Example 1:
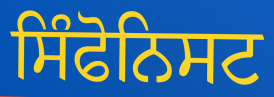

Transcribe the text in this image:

ਸਿੰਫੋਨਿਸਟ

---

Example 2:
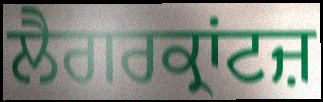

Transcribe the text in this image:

ਲੈਗਰਕ੍ਰਾਂਟਜ਼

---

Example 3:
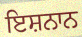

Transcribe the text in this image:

ਇਸ਼ਨਾਨ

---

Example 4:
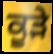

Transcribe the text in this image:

ਕੂੜੇ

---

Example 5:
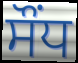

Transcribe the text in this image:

ਸੌਂਧ